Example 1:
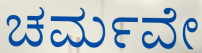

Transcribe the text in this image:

ಚರ್ಮವೇ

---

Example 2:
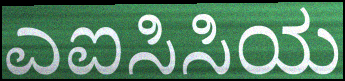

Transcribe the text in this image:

ಎಐಸಿಸಿಯ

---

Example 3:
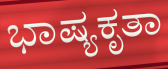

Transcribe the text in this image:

ಭಾಷ್ಯಕೃತಾ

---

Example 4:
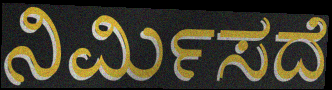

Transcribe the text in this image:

ನಿರ್ಮಿಸದೆ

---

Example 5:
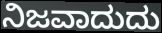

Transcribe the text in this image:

ನಿಜವಾದುದು